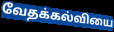
வேதக்கல்வியை